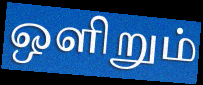
ஒளிறும்